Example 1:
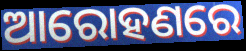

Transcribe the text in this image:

ଆରୋହଣରେ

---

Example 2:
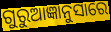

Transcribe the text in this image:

ଗୁରୁଆଜ୍ଞାନୁସାରେ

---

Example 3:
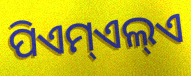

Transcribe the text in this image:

ପିଏମ୍ଏଲ୍ଏ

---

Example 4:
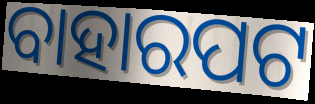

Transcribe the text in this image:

ବାହାରପଟ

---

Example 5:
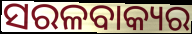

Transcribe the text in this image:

ସରଳବାକ୍ୟର